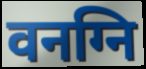
वनग्नि